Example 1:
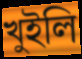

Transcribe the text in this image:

খুইলি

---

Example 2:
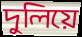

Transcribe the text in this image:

দুলিয়ে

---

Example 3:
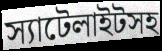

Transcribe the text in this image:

স্যাটেলাইটসহ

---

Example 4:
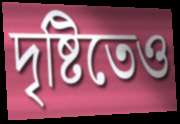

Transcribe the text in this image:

দৃষ্টিতেও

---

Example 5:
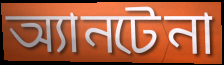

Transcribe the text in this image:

অ্যানটেনা